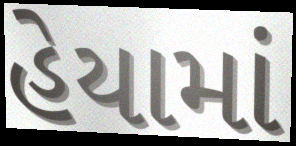
હેયામાં